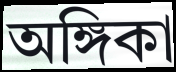
অঙ্গিকা